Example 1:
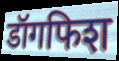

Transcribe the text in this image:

डॉगफिश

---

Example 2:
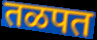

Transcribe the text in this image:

तळपत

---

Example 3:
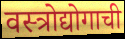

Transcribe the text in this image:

वस्त्रोद्योगाची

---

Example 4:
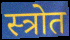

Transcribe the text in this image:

स्त्रोत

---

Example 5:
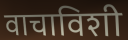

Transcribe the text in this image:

वाचाविशी